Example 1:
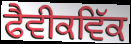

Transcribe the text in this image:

ਫੈਵੀਕਵਿੱਕ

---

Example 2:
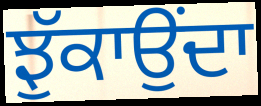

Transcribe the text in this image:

ਝੁੱਕਾਉਂਦਾ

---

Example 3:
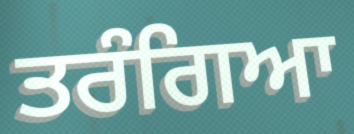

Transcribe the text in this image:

ਤਰੰਗਿਆ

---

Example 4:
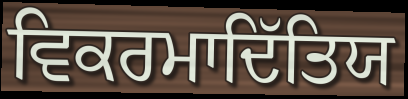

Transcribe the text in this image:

ਵਿਕਰਮਾਦਿੱਤਿਯ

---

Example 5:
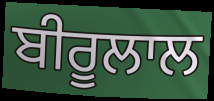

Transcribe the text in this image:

ਬੀਰੂਲਾਲ